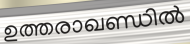
ഉത്തരാഖണ്ഡിൽ